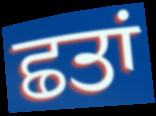
ਛਤਾਂ